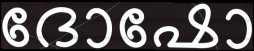
ദോഷോ